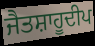
ਜੈਤਸ਼ਾਹੂਦੀਪ